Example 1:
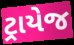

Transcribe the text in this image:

ટ્રાયેજ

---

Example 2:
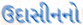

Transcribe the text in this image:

ઉદાસીનનો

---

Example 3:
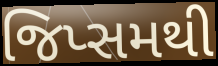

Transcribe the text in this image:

જિપ્સમથી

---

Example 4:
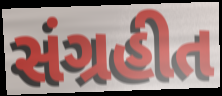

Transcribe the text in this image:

સંગ્રહીત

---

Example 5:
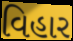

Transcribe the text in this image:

વિહાર